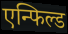
एन्फिल्ड